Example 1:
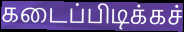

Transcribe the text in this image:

கடைப்பிடிக்கச்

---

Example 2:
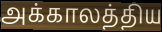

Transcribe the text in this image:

அக்காலத்திய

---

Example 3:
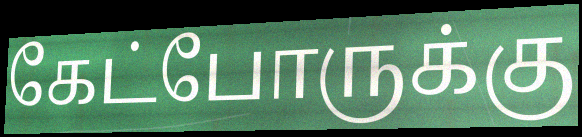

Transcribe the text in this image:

கேட்போருக்கு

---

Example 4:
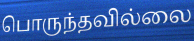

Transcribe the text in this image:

பொருந்தவில்லை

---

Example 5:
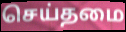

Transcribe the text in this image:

செய்தமை